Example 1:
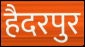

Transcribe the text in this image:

हैदरपुर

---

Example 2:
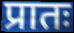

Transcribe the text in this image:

प्रातः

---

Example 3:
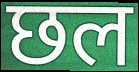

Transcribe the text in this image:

छल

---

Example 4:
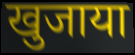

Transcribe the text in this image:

खुजाया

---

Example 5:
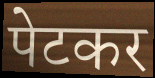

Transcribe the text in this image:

पेटकर